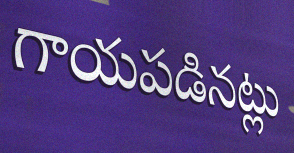
గాయపడినట్లు